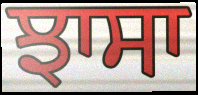
ਝਾਸਾ